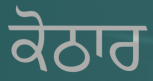
ਕੋਠਾਰ